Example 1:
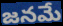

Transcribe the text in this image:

జనమే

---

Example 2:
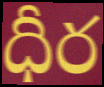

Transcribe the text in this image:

ధీర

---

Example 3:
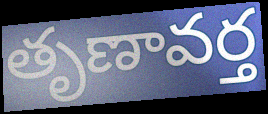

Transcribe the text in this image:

తృణావర్త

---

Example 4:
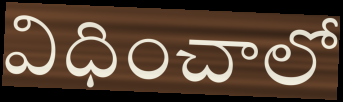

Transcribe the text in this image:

విధించాలో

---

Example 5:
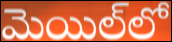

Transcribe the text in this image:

మెయిల్‌లో